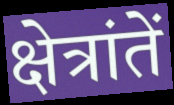
क्षेत्रांतें